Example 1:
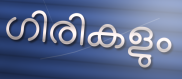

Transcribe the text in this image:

ഗിരികളും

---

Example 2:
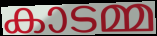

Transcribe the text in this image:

കാടമ്മ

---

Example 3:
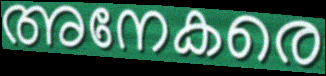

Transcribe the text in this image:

അനേകരെ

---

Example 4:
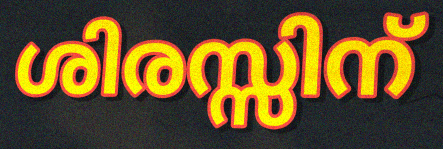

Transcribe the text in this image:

ശിരസ്സിന്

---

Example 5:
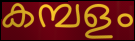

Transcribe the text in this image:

കമ്പളം